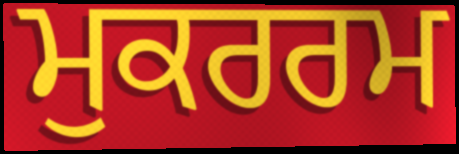
ਮੁਕਰਰਮ